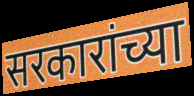
सरकारांच्या